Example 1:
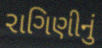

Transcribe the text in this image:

રાગિણીનું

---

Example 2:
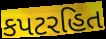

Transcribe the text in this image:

કપટરહિત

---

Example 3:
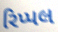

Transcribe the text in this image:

રિપ્પલ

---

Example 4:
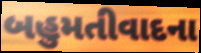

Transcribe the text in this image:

બહુમતીવાદના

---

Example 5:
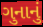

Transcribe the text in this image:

ગુનાનું